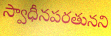
స్వాధీనపరతునని